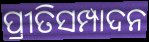
ପ୍ରୀତିସମ୍ପାଦନ